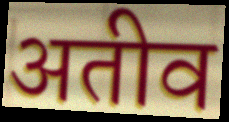
अतीव